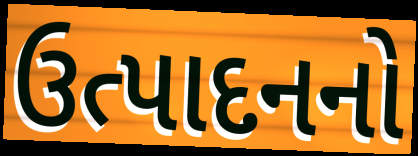
ઉત્પાદનનો